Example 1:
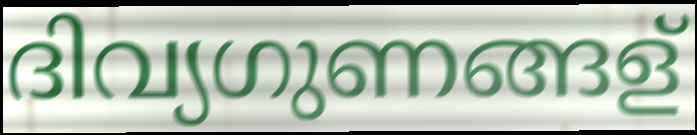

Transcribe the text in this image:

ദിവ്യഗുണങ്ങള്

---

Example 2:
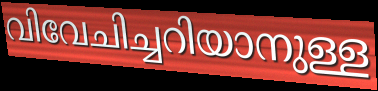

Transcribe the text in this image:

വിവേചിച്ചറിയാനുള്ള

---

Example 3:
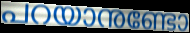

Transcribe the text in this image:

പറയാനുണ്ടോ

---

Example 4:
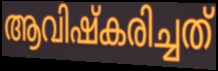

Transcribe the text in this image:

ആവിഷ്കരിച്ചത്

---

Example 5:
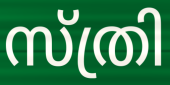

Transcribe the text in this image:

സ്ത്രി